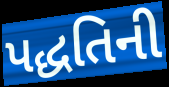
પદ્ધતિની